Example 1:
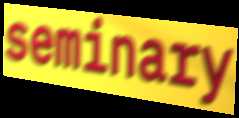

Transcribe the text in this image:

seminary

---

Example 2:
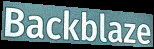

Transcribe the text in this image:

Backblaze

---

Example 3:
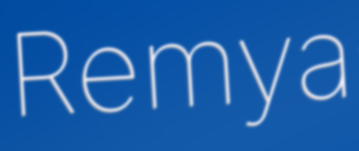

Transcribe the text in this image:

Remya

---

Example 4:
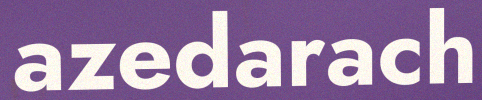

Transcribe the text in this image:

azedarach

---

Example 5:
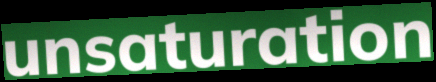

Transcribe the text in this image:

unsaturation